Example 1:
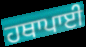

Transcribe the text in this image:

ਹਥਾਪਾਈ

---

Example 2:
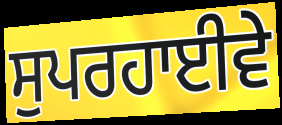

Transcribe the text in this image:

ਸੁਪਰਹਾਈਵੇ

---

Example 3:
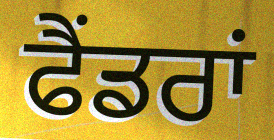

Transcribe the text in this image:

ਫੈਂਡਰਾਂ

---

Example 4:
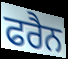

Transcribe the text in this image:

ਫਰੈਨ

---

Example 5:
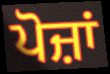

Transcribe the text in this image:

ਪੋਜ਼ਾਂ